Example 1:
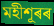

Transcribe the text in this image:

মহীশূৰৰ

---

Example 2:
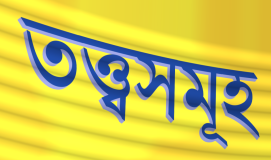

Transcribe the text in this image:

তত্ত্বসমূহ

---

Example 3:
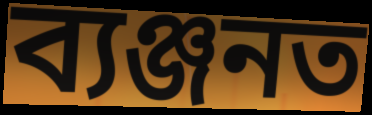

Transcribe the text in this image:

ব্যঞ্জনত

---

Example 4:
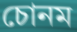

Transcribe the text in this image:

চোনম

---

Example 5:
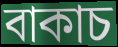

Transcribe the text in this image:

বাকাচ